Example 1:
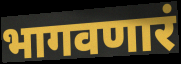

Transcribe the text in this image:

भागवणारं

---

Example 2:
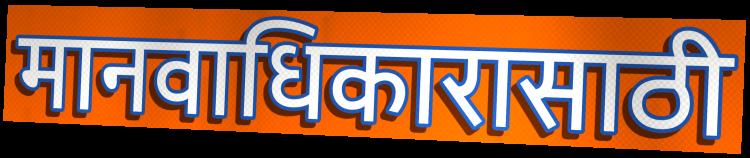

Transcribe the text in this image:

मानवाधिकारासाठी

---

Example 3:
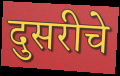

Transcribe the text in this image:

दुसरीचे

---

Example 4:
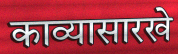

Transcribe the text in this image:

काव्यासारखे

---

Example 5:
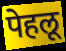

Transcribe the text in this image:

पेहलू